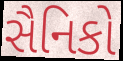
સૈનિકો